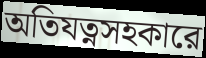
অতিযত্নসহকারে